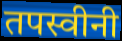
तपस्वीनी